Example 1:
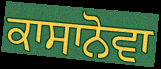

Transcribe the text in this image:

ਕਾਸਾਨੋਵਾ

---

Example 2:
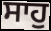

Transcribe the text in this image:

ਸਾਹੁ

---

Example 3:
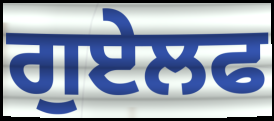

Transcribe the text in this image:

ਗੁਏਲਫ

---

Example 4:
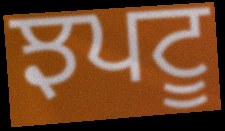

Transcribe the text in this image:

ਝਪਟੂ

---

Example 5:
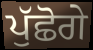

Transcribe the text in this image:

ਪੁੱਛੋਗੇ